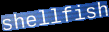
shellfish